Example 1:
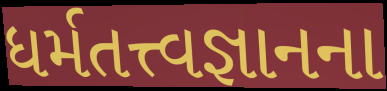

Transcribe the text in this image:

ધર્મતત્ત્વજ્ઞાનના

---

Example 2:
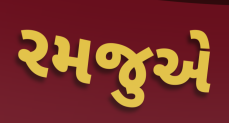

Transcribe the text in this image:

રમજુએ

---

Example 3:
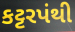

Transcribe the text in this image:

કટ્ટરપંથી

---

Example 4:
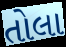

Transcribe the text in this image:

તોલા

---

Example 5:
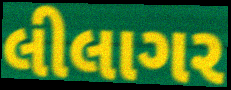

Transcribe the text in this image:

લીલાગર